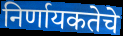
निर्णायकतेचे